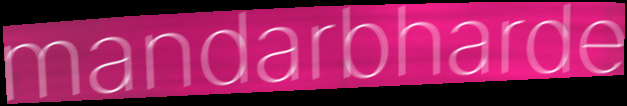
mandarbharde